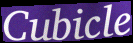
Cubicle